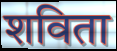
शविता